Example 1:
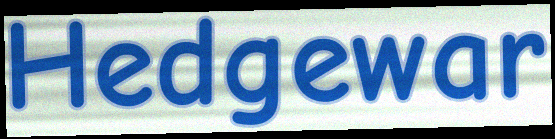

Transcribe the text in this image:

Hedgewar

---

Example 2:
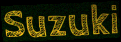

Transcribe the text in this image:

Suzuki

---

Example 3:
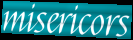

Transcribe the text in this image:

misericors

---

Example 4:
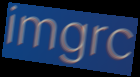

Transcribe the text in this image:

imgrc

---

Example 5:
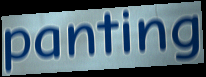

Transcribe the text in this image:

panting